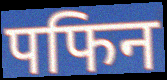
पफिन